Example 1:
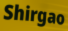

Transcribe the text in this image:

Shirgao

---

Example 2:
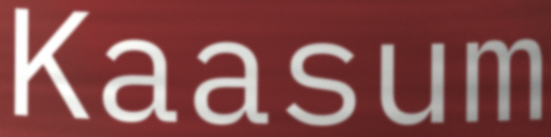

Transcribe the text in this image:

Kaasum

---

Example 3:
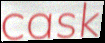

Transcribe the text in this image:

cask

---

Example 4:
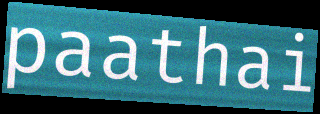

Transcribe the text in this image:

paathai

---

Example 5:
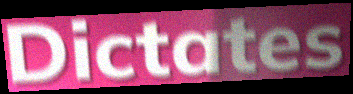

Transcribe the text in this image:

Dictates